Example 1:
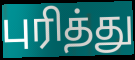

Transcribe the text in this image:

புரித்து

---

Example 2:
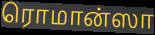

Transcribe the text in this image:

ரொமான்ஸா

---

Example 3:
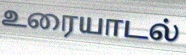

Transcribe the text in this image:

உரையாடல்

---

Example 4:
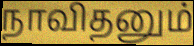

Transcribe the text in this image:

நாவிதனும்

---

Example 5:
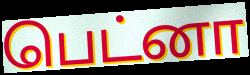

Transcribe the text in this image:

பெட்னா